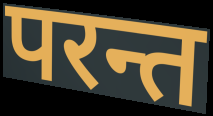
परन्त